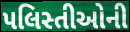
પલિસ્તીઓની